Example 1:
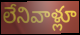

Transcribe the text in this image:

లేనివాళ్లూ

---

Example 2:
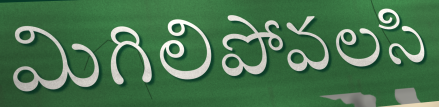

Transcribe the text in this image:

మిగిలిపోవలసి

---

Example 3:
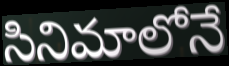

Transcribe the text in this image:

సినిమాలోనే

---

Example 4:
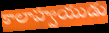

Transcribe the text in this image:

కాలాహ్వయుడు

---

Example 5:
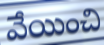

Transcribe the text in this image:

వేయించి